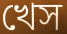
খেস